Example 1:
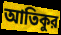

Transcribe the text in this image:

আতিকুর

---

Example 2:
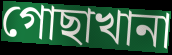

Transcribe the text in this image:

গোছাখানা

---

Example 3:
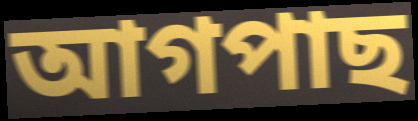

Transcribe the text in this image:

আগপাছ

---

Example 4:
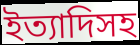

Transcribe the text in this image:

ইত্যাদিসহ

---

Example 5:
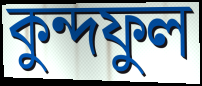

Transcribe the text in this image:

কুন্দফুল